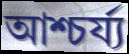
আশ্চৰ্য্য